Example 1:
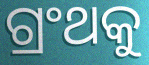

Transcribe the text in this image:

ଗ୍ରଂଥକୁ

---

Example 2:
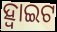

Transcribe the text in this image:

ହ୍ୱାଇଟ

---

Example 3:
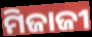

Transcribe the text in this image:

ମିଜାଜୀ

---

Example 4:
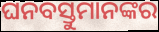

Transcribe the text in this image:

ଘନବସ୍ତୁମାନଙ୍କର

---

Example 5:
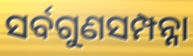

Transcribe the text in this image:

ସର୍ବଗୁଣସମ୍ପନ୍ନା